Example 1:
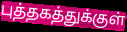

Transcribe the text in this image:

புத்தகத்துக்குள்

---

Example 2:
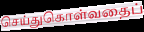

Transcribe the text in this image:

செய்துகொள்வதைப்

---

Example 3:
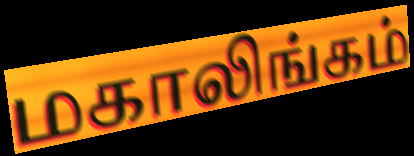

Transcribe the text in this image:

மகாலிங்கம்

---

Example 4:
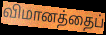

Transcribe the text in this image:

விமானத்தைப்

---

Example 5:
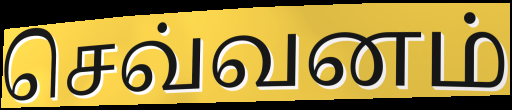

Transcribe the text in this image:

செவ்வனம்